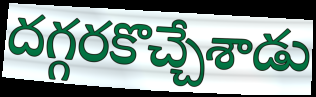
దగ్గరకొచ్చేశాడు